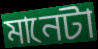
মানেটা